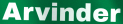
Arvinder